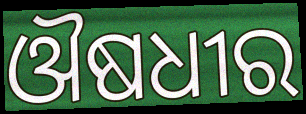
ଔଷଧୀର